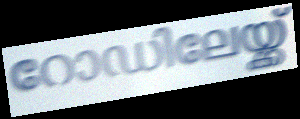
റോഡിലേയ്ക്ക്